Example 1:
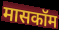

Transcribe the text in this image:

मासकॉम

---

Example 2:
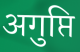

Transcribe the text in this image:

अगुप्ति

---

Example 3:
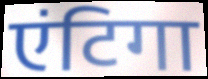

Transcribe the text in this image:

एंटिगा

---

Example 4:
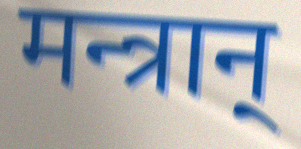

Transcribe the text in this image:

मन्त्रान्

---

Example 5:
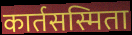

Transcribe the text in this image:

कार्तसस्मिता